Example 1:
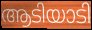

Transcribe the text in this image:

ആടിയാടി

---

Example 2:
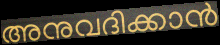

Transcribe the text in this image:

അനുവദിക്കാൻ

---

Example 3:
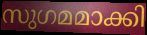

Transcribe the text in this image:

സുഗമമാക്കി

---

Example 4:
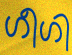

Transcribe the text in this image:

ഗീഗി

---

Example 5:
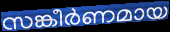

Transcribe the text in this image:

സങ്കീർണമായ